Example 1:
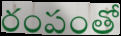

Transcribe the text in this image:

రంపంతో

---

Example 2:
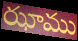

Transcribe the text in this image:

ఝాము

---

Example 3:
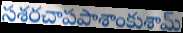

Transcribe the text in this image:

సశరచాపపాశాంకుశామ్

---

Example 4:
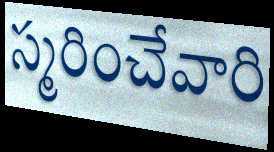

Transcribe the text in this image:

స్మరించేవారి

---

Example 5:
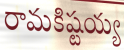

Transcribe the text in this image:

రామకిష్టయ్య